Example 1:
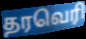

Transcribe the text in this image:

தரவெரி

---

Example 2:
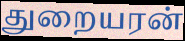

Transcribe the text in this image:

துறையரன்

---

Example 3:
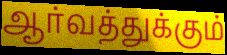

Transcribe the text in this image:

ஆர்வத்துக்கும்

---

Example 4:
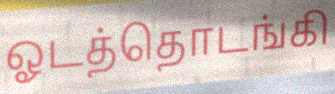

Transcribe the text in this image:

ஓடத்தொடங்கி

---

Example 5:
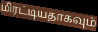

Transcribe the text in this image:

மிரட்டியதாகவும்